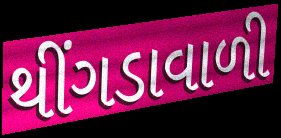
થીંગડાવાળી